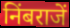
निंबराजें